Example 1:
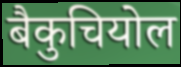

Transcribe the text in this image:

बैकुचियोल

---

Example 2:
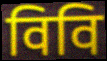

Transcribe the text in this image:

विवि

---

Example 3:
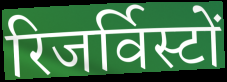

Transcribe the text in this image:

रिजर्विस्टों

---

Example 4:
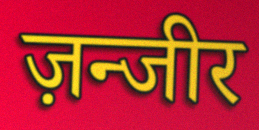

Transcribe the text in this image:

ज़न्जीर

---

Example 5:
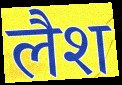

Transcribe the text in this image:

लैश